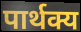
पार्थक्य